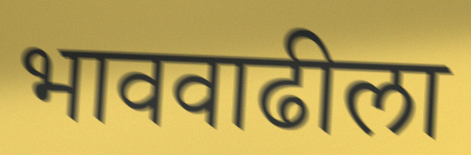
भाववाढीला